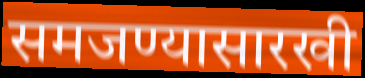
समजण्यासारखी